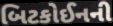
બિટકોઈનની